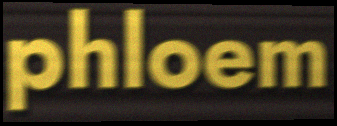
phloem